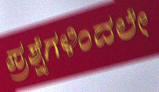
ಪ್ರಶ್ನೆಗಳಿಂದಲೇ